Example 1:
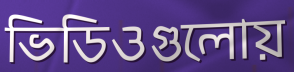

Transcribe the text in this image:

ভিডিওগুলোয়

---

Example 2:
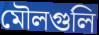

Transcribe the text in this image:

মৌলগুলি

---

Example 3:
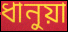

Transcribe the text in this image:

ধানুয়া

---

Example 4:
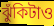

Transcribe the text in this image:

ঝুঁকিটাও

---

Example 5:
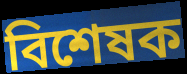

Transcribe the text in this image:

বিশেষক